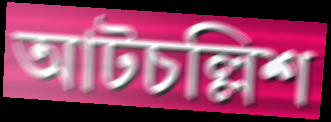
আটচল্লিশ